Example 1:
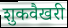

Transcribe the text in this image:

शुकवैखरी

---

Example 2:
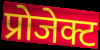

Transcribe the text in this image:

प्रोजेक्ट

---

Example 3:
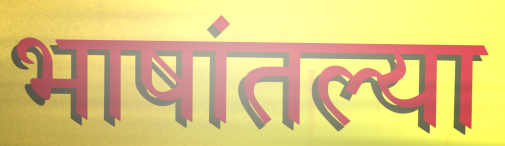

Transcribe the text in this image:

भाषांतल्या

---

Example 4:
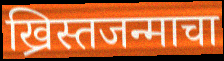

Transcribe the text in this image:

ख्रिस्तजन्माचा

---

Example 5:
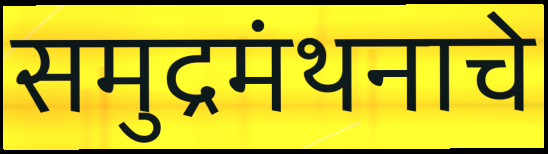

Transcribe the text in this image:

समुद्रमंथनाचे